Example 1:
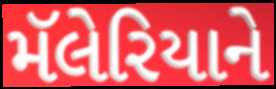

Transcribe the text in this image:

મૅલેરિયાને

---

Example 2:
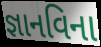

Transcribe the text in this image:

જ્ઞાનવિના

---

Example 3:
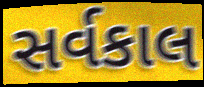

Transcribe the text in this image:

સર્વકાલ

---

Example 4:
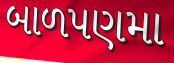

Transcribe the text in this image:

બાળપણમા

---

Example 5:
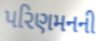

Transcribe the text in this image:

પરિણમનની